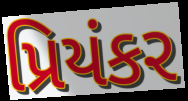
પ્રિયંકર